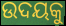
ଉଦୟକୁ